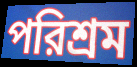
পরিশ্রম